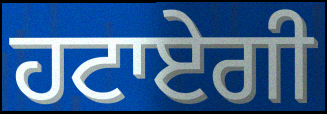
ਹਟਾਏਗੀ